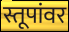
स्तूपांवर